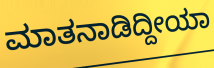
ಮಾತನಾಡಿದ್ದೀಯಾ